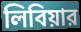
লিবিয়ার